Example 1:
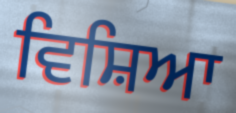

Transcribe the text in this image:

ਵਿਸ਼ਿਆ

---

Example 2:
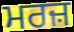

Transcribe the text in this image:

ਮਰਜ਼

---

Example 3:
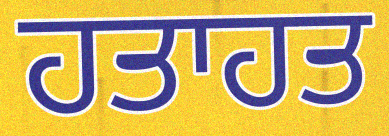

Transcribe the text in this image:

ਹਤਾਹਤ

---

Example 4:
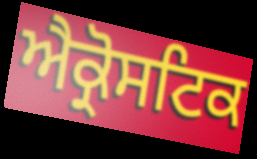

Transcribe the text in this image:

ਐਕ੍ਰੋਸਟਿਕ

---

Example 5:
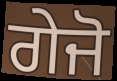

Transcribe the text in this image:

ਗੇਜੋ